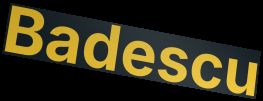
Badescu